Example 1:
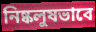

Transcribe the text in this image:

নিষ্কলুষভাবে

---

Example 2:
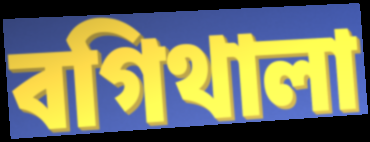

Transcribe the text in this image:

বগিথালা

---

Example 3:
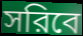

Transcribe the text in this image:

সরিবে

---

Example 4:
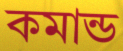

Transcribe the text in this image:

কমান্ড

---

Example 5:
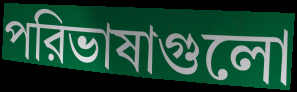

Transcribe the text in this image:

পরিভাষাগুলো